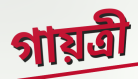
গায়ত্রী